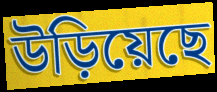
উড়িয়েছে